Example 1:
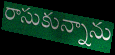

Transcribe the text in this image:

రాసుకున్నాను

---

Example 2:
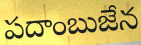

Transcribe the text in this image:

పదాంబుజేన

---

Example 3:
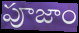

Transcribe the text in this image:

పూజాం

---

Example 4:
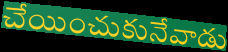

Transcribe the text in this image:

చేయించుకునేవాడు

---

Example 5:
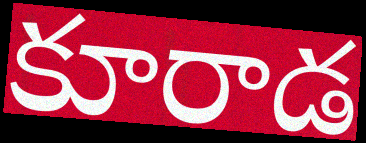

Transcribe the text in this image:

కూరాడ